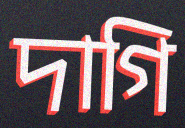
দাগি